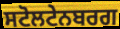
ਸਟੋਲਟੇਨਬਰਗ